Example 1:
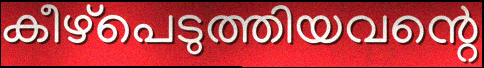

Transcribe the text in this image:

കീഴ്പെടുത്തിയവന്റെ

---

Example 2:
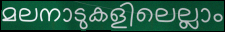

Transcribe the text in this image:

മലനാടുകളിലെല്ലാം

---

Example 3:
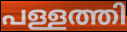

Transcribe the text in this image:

പള്ളത്തി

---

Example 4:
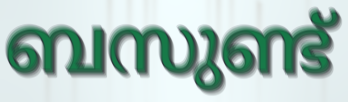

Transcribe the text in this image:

ബസുണ്ട്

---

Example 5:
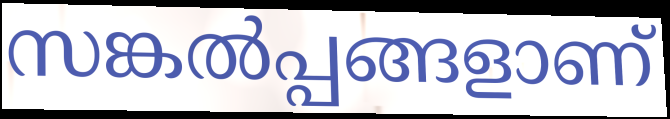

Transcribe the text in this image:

സങ്കൽപ്പങ്ങളാണ്